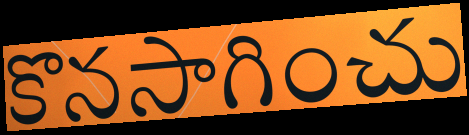
కొనసాగించు